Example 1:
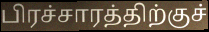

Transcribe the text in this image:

பிரச்சாரத்திற்குச்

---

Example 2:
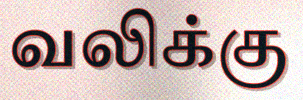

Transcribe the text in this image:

வலிக்கு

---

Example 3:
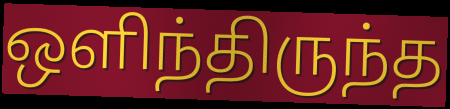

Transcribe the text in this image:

ஒளிந்திருந்த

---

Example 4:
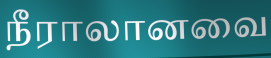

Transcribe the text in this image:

நீராலானவை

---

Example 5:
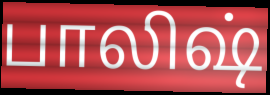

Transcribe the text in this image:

பாலிஷ்